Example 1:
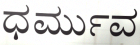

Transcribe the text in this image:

ಧರ್ಮುವ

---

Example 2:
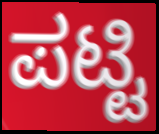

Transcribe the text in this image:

ಪಟ್ಟಿ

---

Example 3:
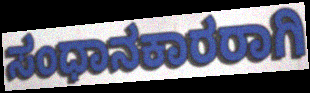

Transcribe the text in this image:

ಸಂಧಾನಕಾರರಾಗಿ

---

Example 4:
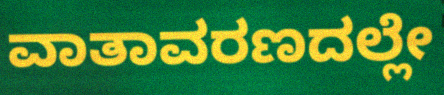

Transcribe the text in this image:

ವಾತಾವರಣದಲ್ಲೇ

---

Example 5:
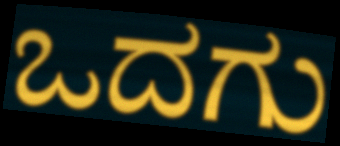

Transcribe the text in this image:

ಒದಗು